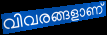
വിവരങ്ങളാണ്